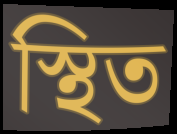
স্থিত